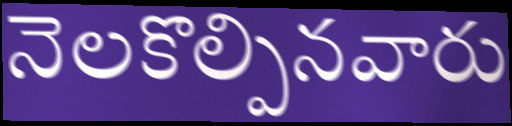
నెలకొల్పినవారు